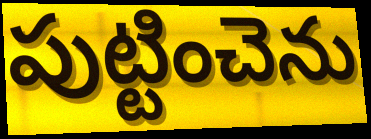
పుట్టించెను